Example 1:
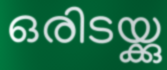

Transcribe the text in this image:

ഒരിടയ്ക്കു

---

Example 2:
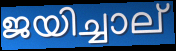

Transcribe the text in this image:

ജയിച്ചാല്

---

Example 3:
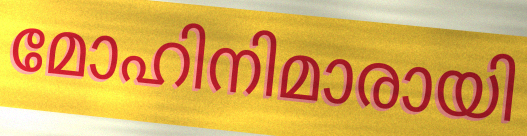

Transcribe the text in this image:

മോഹിനിമാരായി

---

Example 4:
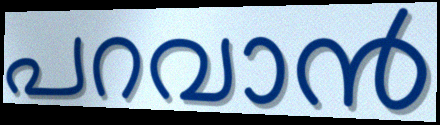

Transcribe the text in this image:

പറവാൻ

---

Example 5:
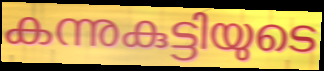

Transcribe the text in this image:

കന്നുകുട്ടിയുടെ